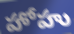
హోహు